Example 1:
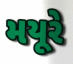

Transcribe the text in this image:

મયૂરે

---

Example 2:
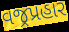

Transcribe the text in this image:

વજ્રપ્રહાર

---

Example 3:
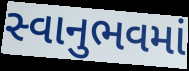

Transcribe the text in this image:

સ્વાનુભવમાં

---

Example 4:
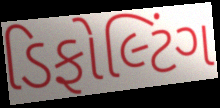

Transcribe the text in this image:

ડિફોલ્ટિંગ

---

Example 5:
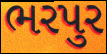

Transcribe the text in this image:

ભરપુર